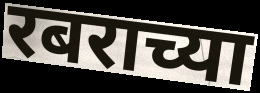
रबराच्या